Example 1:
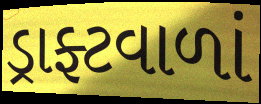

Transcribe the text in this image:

ડ્રાફ્ટવાળાં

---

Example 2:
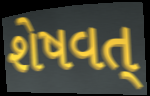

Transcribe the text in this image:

શેષવત્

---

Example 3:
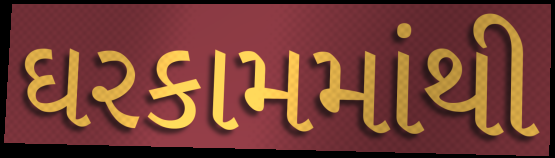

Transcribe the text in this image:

ઘરકામમાંથી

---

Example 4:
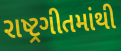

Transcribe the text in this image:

રાષ્ટ્રગીતમાંથી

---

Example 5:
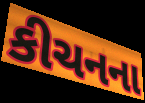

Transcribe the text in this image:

કીચનના